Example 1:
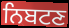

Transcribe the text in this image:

ਨਿਬਟਣ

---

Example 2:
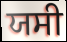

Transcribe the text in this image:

ਯਸੀ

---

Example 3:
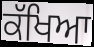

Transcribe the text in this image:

ਕੱਖਿਆ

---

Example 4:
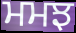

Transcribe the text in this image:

ਮਮਝ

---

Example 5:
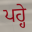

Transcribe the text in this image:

ਪਹ੍ਹੇ